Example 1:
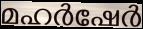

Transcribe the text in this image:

മഹർഷേർ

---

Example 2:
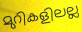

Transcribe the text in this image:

മുറികളിലല്ല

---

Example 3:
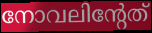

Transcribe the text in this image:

നോവലിന്റേത്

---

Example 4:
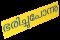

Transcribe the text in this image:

ഭരിച്ചുപോന്നു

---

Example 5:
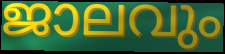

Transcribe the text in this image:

ജാലവും